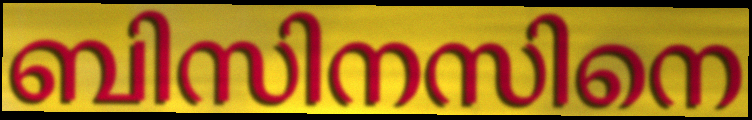
ബിസിനസിനെ